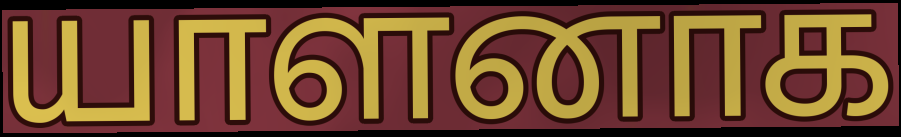
யாளனாக